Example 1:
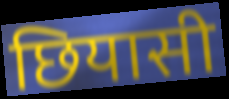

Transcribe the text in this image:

छियासी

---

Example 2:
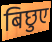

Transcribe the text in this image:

बिछुए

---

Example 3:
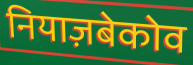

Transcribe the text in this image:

नियाज़बेकोव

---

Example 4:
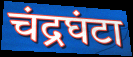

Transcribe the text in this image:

चंद्रघंटा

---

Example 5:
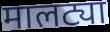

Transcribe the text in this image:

मालट्या